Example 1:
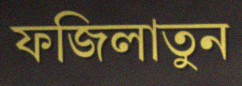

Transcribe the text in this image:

ফজিলাতুন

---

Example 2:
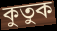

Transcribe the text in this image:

কুতুক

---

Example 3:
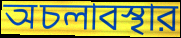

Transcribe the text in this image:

অচলাবস্থার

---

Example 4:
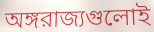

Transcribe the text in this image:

অঙ্গরাজ্যগুলোই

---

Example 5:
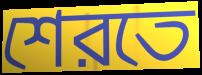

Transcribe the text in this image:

শেরতে